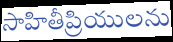
సాహితీప్రియులను